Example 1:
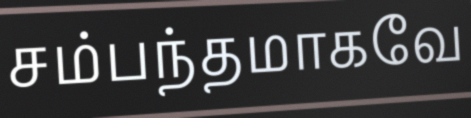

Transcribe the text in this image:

சம்பந்தமாகவே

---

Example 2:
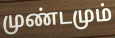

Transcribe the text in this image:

முண்டமும்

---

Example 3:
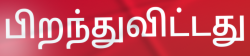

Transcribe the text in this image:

பிறந்துவிட்டது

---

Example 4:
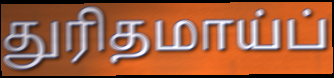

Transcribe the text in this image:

துரிதமாய்ப்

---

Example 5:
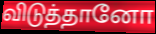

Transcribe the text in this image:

விடுத்தானோ